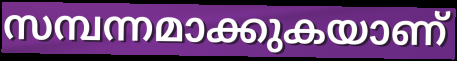
സമ്പന്നമാക്കുകയാണ്